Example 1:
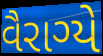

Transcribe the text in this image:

વૈરાગ્યે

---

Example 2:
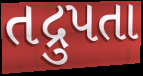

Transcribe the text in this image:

તદ્રુપતા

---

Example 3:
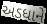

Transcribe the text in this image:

અડધાને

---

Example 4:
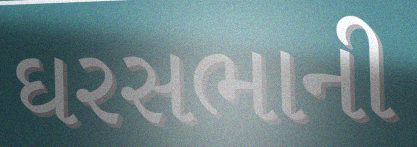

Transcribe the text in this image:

ઘરસભાની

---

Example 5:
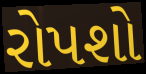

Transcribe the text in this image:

રોપશો